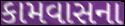
કામવાસના